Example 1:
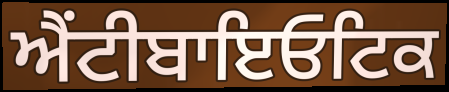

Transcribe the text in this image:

ਐਂਟੀਬਾਇਓਟਿਕ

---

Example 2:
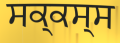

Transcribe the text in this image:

ਸਕ੍ਕਸ੍ਸ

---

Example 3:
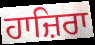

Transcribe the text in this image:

ਹਾਜ਼ਿਰਾ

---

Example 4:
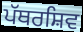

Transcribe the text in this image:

ਪੱਥਰਸ਼ਿਵ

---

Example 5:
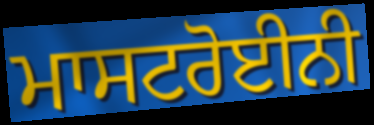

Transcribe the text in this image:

ਮਾਸਟਰੋਈਨੀ